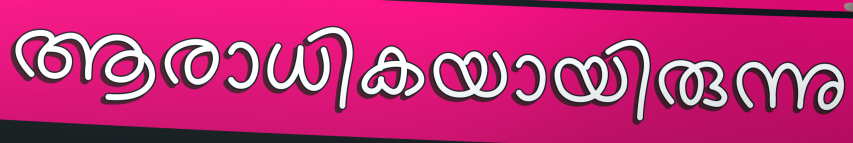
ആരാധികയായിരുന്നു